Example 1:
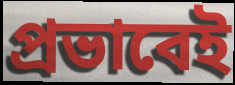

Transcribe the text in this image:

প্রভাবেই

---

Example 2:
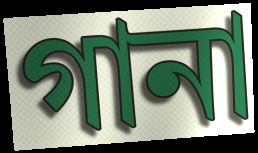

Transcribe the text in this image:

গানা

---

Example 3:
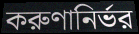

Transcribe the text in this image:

করুণানির্ভর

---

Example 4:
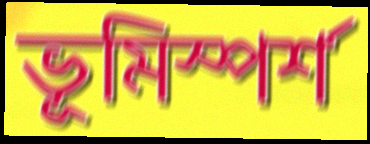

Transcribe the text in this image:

ভূমিস্পর্শ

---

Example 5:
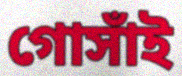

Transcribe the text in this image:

গোসাঁই